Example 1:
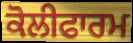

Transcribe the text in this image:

ਕੋਲੀਫਾਰਮ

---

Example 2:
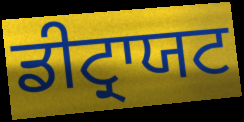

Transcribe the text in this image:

ਡੀਟ੍ਰਾਯਟ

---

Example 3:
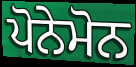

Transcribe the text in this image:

ਪੋਨੇਮੋਨ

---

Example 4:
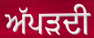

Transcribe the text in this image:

ਅੱਪੜਦੀ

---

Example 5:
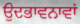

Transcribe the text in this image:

ਉਦਭਾਵਨਾਵਾਂ